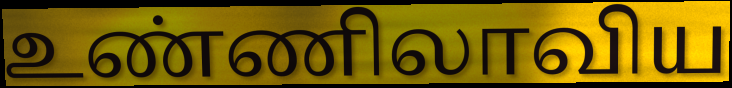
உண்ணிலாவிய